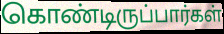
கொண்டிருப்பார்கள்